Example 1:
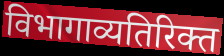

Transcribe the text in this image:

विभागाव्यतिरिक्त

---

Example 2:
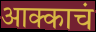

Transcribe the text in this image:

आक्काचं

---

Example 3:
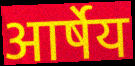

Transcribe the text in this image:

आर्षेय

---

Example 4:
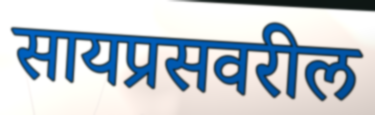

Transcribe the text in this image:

सायप्रसवरील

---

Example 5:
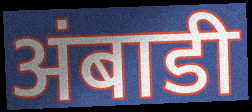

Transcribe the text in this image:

अंबाडी